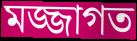
মজ্জাগত